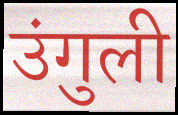
उंगुली